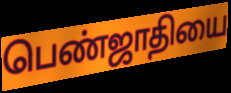
பெண்ஜாதியை